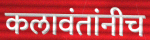
कलावंतांनीच